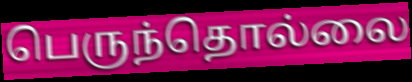
பெருந்தொல்லை